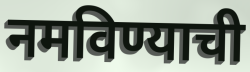
नमविण्याची